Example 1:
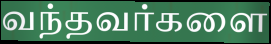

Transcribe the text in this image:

வந்தவர்களை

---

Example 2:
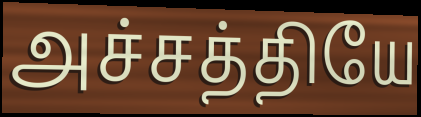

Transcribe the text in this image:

அச்சத்தியே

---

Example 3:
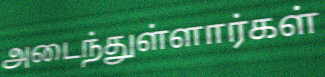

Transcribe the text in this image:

அடைந்துள்ளார்கள்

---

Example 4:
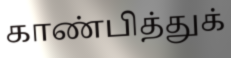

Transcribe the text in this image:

காண்பித்துக்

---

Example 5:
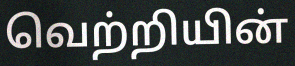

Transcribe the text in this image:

வெற்றியின்